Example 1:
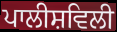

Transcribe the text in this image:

ਪਾਲੀਸ਼ਵਿਲੀ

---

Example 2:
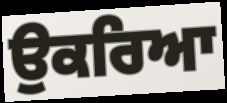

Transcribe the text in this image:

ਉਕਰਿਆ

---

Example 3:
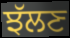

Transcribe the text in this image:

ਝੱਲਣ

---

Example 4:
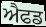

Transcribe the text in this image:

ਐਫਡ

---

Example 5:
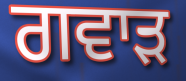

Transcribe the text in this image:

ਗਵਾੜ